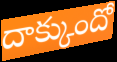
దాక్కుందో